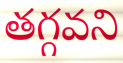
తగ్గవని